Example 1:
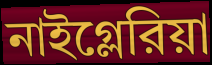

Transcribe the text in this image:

নাইগ্লেরিয়া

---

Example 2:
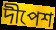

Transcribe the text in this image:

দীপেশ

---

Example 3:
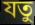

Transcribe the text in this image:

যতু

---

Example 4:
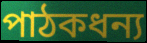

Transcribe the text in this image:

পাঠকধন্য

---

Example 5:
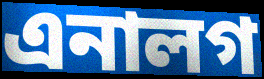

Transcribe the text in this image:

এনালগ